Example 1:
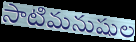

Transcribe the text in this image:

సాటిమనుషుల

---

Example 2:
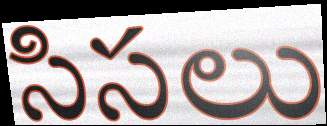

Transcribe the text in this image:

సిసలు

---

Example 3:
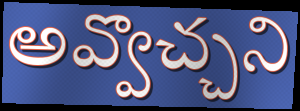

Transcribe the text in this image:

అవ్వొచ్చని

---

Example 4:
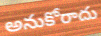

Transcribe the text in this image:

అనుకోరాదు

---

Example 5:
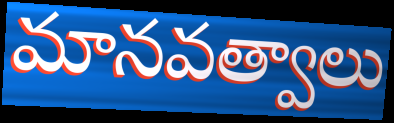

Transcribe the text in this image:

మానవత్వాలు